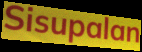
Sisupalan